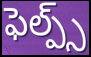
ఫెల్ప్స్